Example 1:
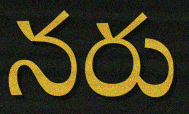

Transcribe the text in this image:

నరు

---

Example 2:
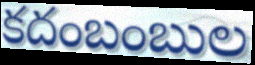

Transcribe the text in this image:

కదంబంబుల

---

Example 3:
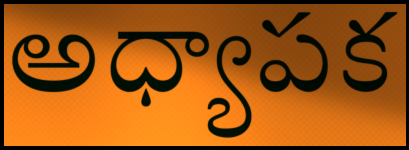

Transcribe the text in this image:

అధ్యాపక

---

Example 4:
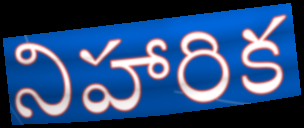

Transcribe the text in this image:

నిహారిక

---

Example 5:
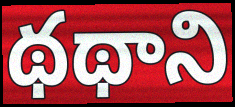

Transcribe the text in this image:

థథాని